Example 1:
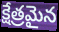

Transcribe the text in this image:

క్షేత్రమైన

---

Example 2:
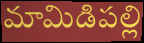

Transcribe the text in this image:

మామిడిపల్లి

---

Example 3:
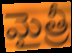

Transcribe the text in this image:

మైత్రీ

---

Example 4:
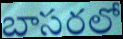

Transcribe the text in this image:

బాసరలో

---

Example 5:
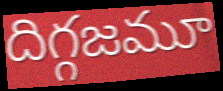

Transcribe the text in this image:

దిగ్గజమూ